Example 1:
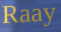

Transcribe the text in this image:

Raay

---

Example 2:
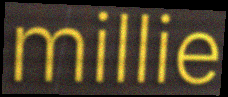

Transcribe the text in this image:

millie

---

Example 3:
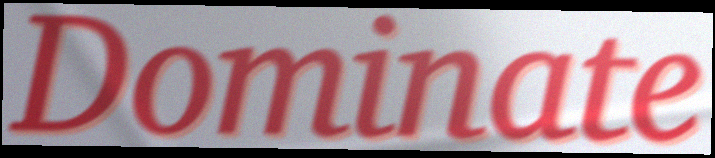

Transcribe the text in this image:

Dominate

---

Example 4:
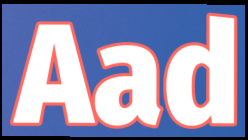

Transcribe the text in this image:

Aad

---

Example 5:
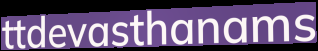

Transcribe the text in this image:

ttdevasthanams